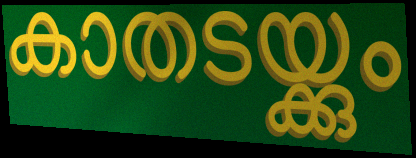
കാതടയ്ക്കും